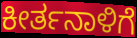
ಕೀರ್ತನಾಳಿಗೆ